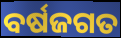
ବର୍ଷଜଗତ